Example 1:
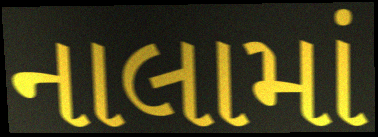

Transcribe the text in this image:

નાલામાં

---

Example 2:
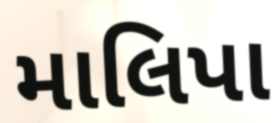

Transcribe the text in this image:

માલિપા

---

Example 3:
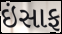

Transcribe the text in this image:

ઇંસાફ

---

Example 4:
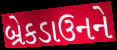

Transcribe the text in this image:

બ્રેકડાઉનને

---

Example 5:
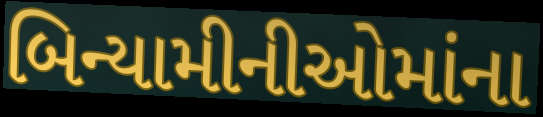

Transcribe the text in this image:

બિન્યામીનીઓમાંના